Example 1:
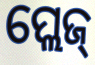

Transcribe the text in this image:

ପ୍ଲେଜ୍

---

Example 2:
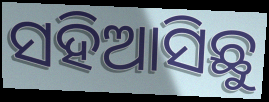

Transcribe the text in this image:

ସହିଆସିଛୁ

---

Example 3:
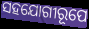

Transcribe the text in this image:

ସହଯୋଗୀରୂପେ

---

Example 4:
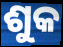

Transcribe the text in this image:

ଶୁକ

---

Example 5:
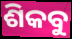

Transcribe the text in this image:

ଶିକବୁ